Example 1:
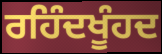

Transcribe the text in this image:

ਰਹਿੰਦਖੂੰਹਦ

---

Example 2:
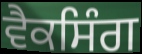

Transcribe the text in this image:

ਵੈਕਸਿੰਗ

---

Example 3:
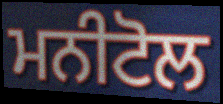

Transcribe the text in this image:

ਮਨੀਟੋਲ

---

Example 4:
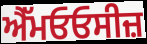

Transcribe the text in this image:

ਐੱਮਓਓਸੀਜ਼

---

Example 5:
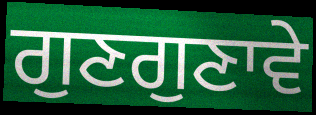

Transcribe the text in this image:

ਗੁਣਗੁਣਾਵੇ